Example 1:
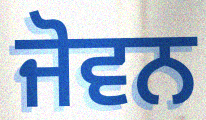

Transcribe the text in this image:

ਜੋਵਨ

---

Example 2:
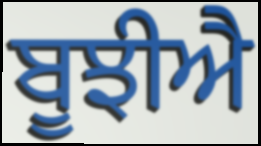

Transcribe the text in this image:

ਬੂਝੀਐ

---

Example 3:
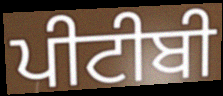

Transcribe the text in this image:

ਪੀਟੀਬੀ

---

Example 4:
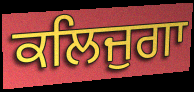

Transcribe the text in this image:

ਕਲਿਜੁਗਾ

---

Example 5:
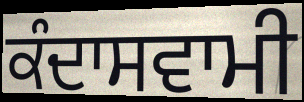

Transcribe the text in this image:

ਕੰਦਾਸਵਾਮੀ